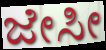
ಜೇಸೀ